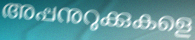
അപ്പനുറുക്കുകളെ